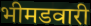
भीमडवारी